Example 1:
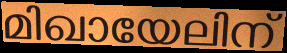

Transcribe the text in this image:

മിഖായേലിന്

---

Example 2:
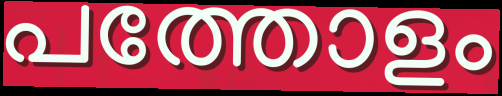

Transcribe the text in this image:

പത്തോളം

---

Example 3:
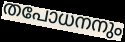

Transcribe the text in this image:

തപോധനനും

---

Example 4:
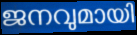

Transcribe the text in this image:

ജനവുമായി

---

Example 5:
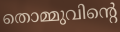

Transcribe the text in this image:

തൊമ്മുവിന്റെ